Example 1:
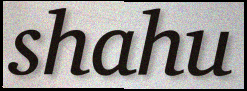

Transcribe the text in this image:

shahu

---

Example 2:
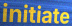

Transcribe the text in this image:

initiate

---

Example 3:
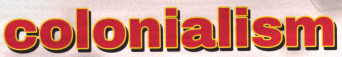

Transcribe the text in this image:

colonialism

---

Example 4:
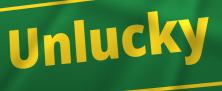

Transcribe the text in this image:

Unlucky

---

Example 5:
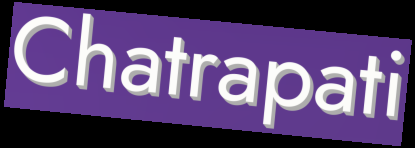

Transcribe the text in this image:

Chatrapati